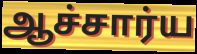
ஆச்சார்ய